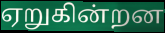
ஏறுகின்றன